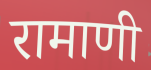
रामाणी